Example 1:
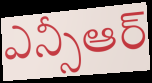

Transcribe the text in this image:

ఎన్సీఆర్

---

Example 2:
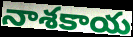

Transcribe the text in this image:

నాశకాయ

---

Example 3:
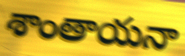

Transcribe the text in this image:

శాంతాయనా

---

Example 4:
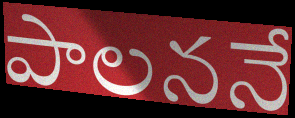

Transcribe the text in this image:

పాలననే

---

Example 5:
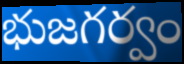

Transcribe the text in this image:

భుజగర్వం